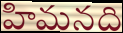
హిమనది